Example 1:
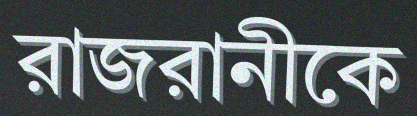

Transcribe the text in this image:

রাজরানীকে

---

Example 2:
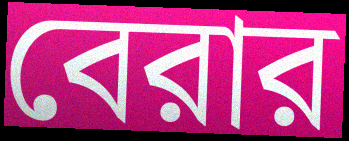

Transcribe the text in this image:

বেরার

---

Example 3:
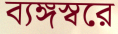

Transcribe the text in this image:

ব্যঙ্গস্বরে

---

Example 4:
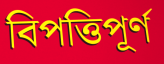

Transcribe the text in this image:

বিপত্তিপূর্ণ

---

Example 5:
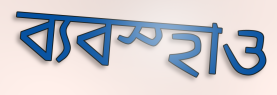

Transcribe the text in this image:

ব্যবস্হাও